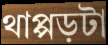
থাপ্পড়টা